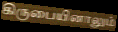
கிருபையினாலும்